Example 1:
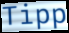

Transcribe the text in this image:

Tipp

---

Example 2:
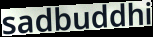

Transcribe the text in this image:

sadbuddhi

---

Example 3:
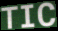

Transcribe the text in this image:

TIC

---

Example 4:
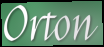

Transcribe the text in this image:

Orton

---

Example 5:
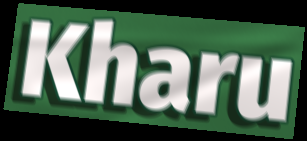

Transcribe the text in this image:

Kharu